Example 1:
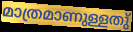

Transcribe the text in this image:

മാത്രമാണുള്ളതു്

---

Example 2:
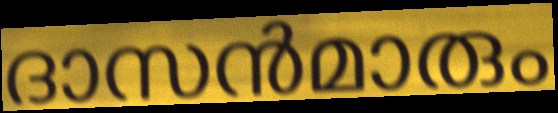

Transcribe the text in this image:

ദാസൻമാരും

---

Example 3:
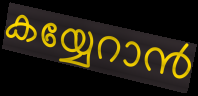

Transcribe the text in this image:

കയ്യേറാൻ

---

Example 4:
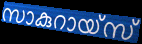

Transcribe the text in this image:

സാകുറായ്സ്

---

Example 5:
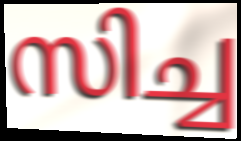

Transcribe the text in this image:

സിച്ച